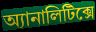
অ্যানালিটিক্সে